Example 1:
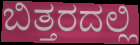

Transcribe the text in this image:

ಬಿತ್ತರದಲ್ಲಿ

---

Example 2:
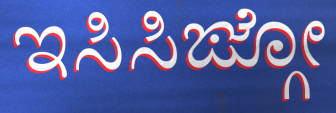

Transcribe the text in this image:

ಇಸಿಸಿಙ್ಗೋ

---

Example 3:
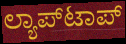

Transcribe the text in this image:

ಲ್ಯಾಪ್‌ಟಾಪ್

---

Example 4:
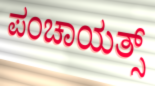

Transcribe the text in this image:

ಪಂಚಾಯತ್ಸ್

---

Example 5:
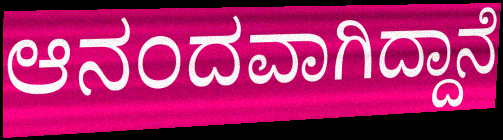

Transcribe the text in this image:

ಆನಂದವಾಗಿದ್ದಾನೆ